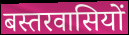
बस्तरवासियों